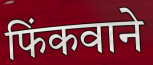
फिंकवाने